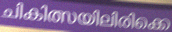
ചികിത്സയിലിരിക്കെ